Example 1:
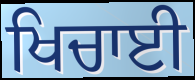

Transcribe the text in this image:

ਖਿਚਾਈ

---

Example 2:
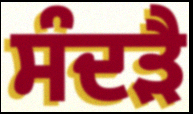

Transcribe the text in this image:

ਸੰਦੜੈ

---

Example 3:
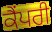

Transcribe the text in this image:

ਕੈਂਪਰੀ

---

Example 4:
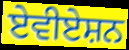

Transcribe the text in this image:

ਏਵੀਏਸ਼ਨ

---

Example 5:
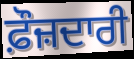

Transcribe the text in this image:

ਫ਼ੌਜ਼ਦਾਰੀ